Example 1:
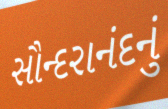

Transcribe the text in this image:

સૌન્દરાનંદનું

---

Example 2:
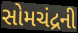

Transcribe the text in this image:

સોમચંદ્રની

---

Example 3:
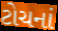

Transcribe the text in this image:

ટોચનાં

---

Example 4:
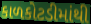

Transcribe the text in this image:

કાળકોટડીમાંથી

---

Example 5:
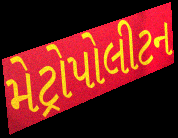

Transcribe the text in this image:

મેટ્રોપોલીટન